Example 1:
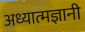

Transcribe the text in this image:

अध्यात्मज्ञानी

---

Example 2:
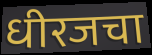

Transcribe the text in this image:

धीरजचा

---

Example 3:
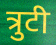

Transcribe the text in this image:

त्रुटी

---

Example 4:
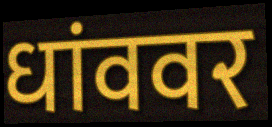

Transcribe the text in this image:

धांववर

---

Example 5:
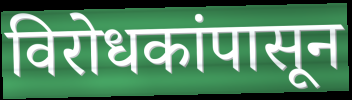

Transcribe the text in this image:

विरोधकांपासून